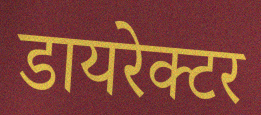
डायरेक्टर